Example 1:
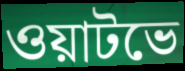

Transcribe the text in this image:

ওয়াটভে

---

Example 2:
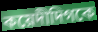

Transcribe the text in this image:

কয়েদীদিগকে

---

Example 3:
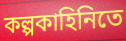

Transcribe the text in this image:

কল্পকাহিনিতে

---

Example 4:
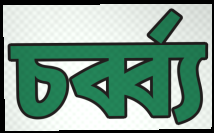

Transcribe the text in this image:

চর্ব্ব্য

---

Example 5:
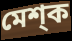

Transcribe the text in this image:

মেশ্ক